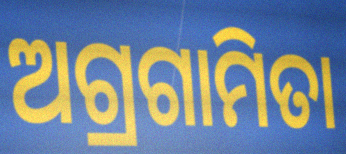
ଅଗ୍ରଗାମିତା